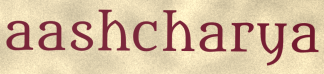
aashcharya